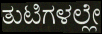
ತುಟಿಗಳಲ್ಲೇ